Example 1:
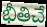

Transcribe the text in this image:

భీతిచే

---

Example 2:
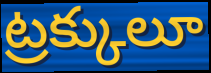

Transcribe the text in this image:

ట్రక్కులూ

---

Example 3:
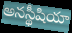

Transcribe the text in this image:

అనస్థీషియా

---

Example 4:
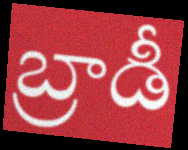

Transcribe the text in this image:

బ్రాడీ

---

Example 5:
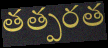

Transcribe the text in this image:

తత్పరత